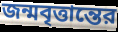
জন্মবৃত্তান্তের